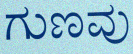
ಗುಣವು